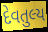
દેવતુલ્ય